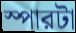
স্পারটা